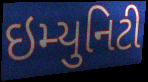
ઇમ્યુનિટી